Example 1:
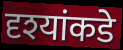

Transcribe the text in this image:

दृश्यांकडे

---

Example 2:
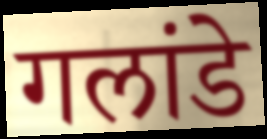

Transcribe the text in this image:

गलांडे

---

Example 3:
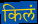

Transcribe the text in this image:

किलं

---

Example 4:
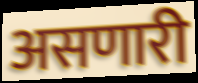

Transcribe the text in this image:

असणारी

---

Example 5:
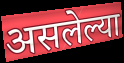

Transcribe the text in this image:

असलेल्या